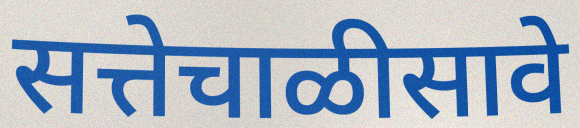
सत्तेचाळीसावे